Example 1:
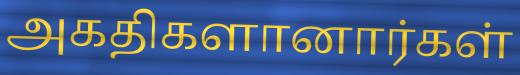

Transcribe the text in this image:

அகதிகளானார்கள்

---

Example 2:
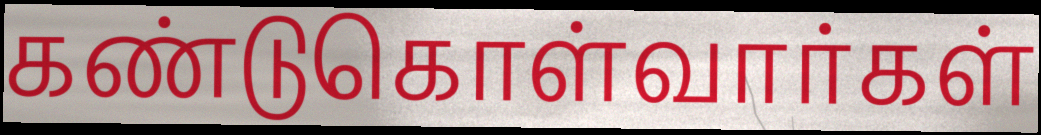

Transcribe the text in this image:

கண்டுகொள்வார்கள்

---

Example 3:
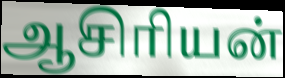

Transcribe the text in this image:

ஆசிரியன்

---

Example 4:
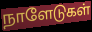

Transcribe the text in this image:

நாளேடுகள்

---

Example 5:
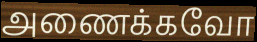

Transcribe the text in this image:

அணைக்கவோ